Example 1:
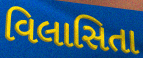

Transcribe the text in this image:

વિલાસિતા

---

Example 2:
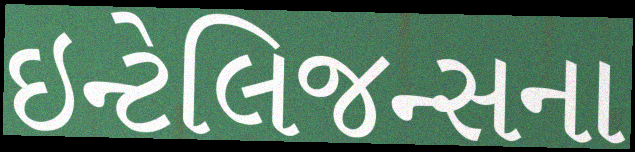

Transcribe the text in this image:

ઇન્ટેલિજન્સના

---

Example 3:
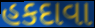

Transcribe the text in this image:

હકદાવા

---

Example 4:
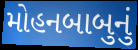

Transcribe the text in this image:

મોહનબાબુનું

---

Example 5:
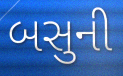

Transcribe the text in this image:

બસુની